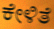
ಕೇಳಿತೆ